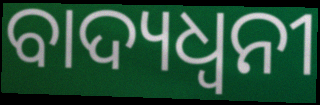
ବାଦ୍ୟଧ୍ୱନୀ